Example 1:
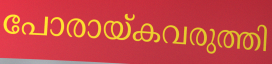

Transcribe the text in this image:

പോരായ്കവരുത്തി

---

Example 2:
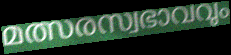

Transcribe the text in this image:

മത്സരസ്വഭാവവും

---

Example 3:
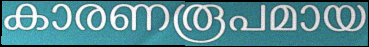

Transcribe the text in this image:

കാരണരൂപമായ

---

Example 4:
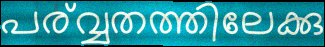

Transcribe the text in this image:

പര്വ്വതത്തിലേക്കു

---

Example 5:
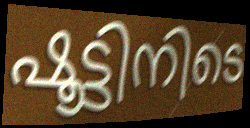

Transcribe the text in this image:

ഷൂട്ടിനിടെ